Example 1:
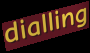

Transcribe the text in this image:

dialling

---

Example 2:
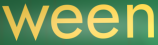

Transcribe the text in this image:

ween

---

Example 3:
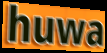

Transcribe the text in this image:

huwa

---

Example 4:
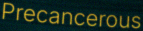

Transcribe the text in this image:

Precancerous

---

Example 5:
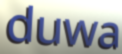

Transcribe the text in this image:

duwa